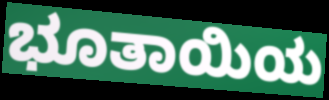
ಭೂತಾಯಿಯ